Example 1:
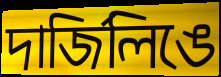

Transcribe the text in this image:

দার্জিলিঙে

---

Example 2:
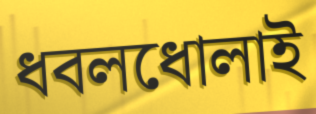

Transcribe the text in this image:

ধবলধোলাই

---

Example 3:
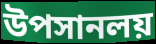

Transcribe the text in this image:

উপসানলয়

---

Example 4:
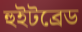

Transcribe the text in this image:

হুইটব্রেড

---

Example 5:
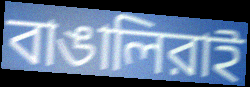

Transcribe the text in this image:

বাঙালিরাই